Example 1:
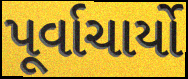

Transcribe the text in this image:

પૂર્વાચાર્યો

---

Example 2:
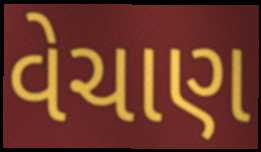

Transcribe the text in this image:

વેચાણ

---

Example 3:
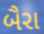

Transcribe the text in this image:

બૈરા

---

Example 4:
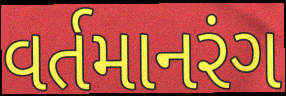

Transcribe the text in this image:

વર્તમાનરંગ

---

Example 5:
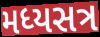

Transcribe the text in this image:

મધ્યસત્ર